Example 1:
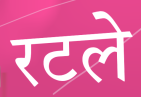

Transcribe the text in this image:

रटले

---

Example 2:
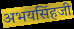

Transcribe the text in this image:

अभयसिंहजी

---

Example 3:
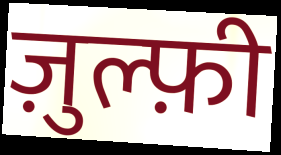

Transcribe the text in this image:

ज़ुल्फ़ी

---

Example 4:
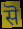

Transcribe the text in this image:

सॆ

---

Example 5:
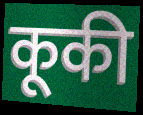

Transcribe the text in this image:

कूकी